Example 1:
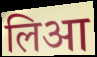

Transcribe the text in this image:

लिआ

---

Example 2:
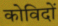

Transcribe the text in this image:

कोविदों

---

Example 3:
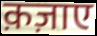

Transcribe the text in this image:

क़ज़ाए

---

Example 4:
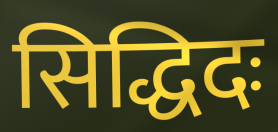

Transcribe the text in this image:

सिद्धिदः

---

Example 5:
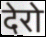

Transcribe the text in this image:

देरो